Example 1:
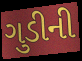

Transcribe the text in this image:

ગુડીની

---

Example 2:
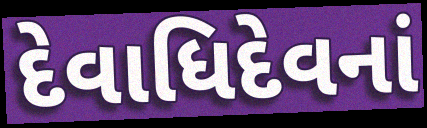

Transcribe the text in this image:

દેવાધિદેવનાં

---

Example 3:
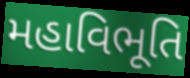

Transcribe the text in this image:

મહાવિભૂતિ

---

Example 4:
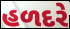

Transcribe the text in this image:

હળદરે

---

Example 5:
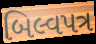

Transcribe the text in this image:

બિલ્વપત્ર